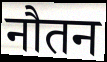
नौतन